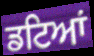
ਡਟਿਆਂ